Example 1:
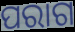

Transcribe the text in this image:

ପରାଗ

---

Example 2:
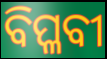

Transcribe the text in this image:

ବିପ୍ଳବୀ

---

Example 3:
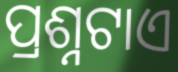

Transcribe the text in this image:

ପ୍ରଶ୍ନଟାଏ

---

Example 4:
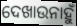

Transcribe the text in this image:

ଦେଖାଉନାହୁଁ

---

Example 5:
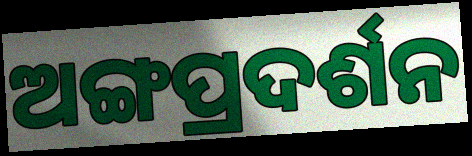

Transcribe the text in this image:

ଅଙ୍ଗପ୍ରଦର୍ଶନ